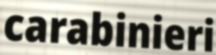
carabinieri